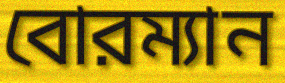
বোরম্যান